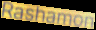
Rashamon